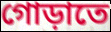
গোড়াতে